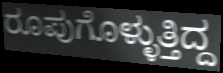
ರೂಪುಗೊಳ್ಳುತ್ತಿದ್ದ